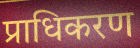
प्राधिकरण